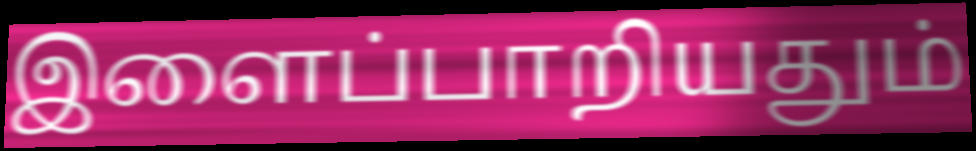
இளைப்பாறியதும்